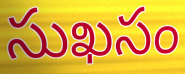
సుఖసం